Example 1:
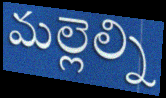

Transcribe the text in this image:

మల్లెల్ని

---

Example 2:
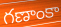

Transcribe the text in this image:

గణాంకా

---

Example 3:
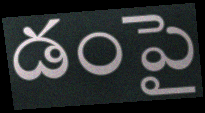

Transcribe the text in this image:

డంపై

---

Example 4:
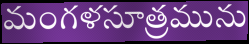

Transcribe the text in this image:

మంగళసూత్రమును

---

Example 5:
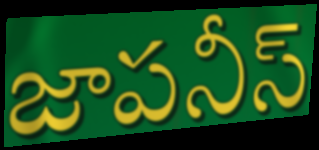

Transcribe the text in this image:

జాపనీస్